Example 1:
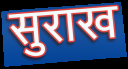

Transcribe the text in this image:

सुराख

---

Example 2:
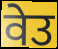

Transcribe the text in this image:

वेउ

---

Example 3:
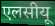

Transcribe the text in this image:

एलसीयू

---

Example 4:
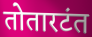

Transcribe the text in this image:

तोतारटंत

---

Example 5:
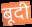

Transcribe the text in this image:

बूदी